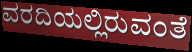
ವರದಿಯಲ್ಲಿರುವಂತೆ